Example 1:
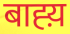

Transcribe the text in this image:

बाह्य़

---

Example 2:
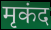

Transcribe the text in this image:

मृकंद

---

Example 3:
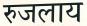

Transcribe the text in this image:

रुजलाय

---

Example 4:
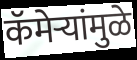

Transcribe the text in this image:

कॅमेऱ्यांमुळे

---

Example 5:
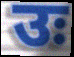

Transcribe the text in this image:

उः